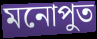
মনোপুত